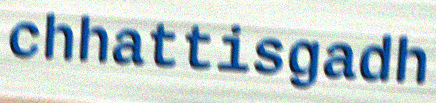
chhattisgadh